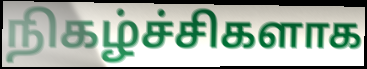
நிகழ்ச்சிகளாக